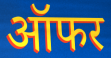
ऑफर